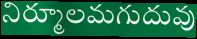
నిర్మూలమగుదువు